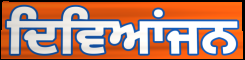
ਦਿਵਿਆਂਜਨ